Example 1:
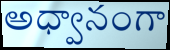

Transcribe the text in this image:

అధ్వానంగా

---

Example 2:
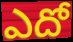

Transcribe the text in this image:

ఎదో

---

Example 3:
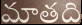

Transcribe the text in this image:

మాతది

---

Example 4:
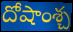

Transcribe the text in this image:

దోషాంశ్చ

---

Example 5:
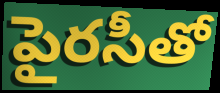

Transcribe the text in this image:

పైరసీతో